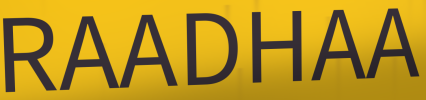
RAADHAA